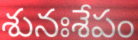
శునఃశేపం